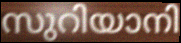
സുറിയാനി